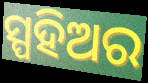
ସ୍ପହିଅର